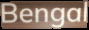
Bengal